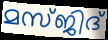
മസ്ജിദ്